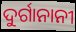
ଦୁର୍ଗାନାନୀ